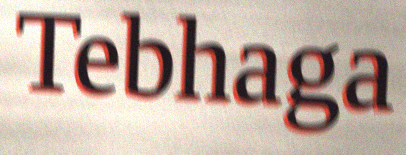
Tebhaga